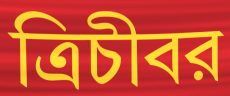
ত্রিচীবর